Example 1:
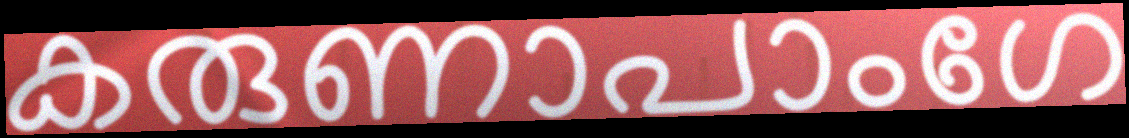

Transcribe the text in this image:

കരുണാപാംഗേ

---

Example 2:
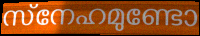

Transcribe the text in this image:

സ്‌നേഹമുണ്ടോ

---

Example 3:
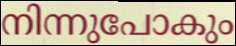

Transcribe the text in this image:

നിന്നുപോകും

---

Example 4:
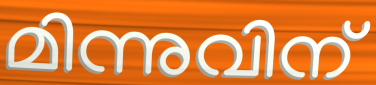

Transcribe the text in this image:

മിന്നുവിന്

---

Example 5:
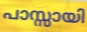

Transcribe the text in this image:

പാസ്സായി